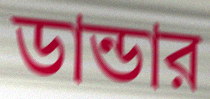
ডান্ডার